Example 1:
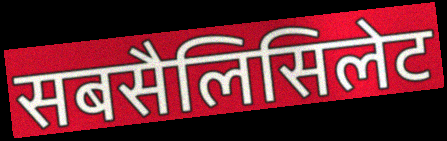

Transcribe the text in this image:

सबसैलिसिलेट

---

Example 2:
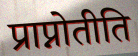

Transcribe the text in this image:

प्राप्नोतीति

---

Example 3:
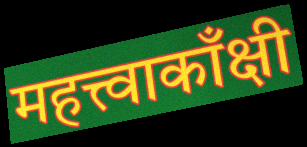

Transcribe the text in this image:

महत्त्वाकाँक्षी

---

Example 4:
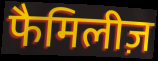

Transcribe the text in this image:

फैमिलीज़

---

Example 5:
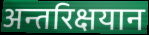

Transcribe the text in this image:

अन्तरिक्षयान